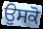
ਉਸਕੋ